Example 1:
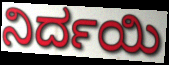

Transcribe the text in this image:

ನಿರ್ದಯಿ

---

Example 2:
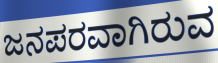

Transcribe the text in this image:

ಜನಪರವಾಗಿರುವ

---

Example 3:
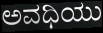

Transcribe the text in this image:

ಅವಧಿಯು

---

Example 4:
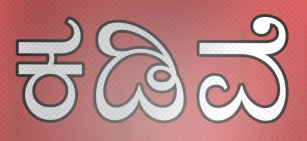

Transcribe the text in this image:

ಕಡಿವೆ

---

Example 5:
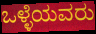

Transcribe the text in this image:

ಒಳ್ಳೆಯವರು